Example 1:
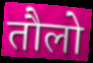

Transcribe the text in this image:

तौलो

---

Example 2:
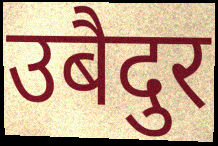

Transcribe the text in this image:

उबैदुर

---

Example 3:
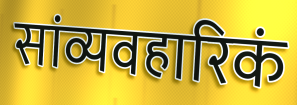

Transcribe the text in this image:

सांव्यवहारिकं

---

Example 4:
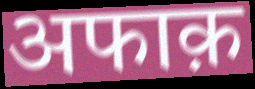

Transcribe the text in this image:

अफाक़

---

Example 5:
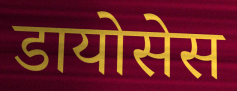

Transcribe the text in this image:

डायोसेस